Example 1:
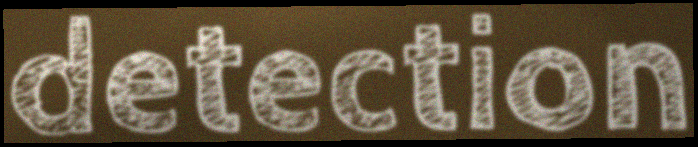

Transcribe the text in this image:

detection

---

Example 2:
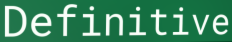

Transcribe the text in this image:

Definitive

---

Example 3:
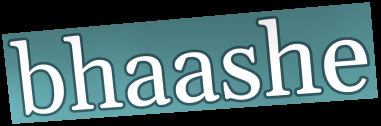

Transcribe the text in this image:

bhaashe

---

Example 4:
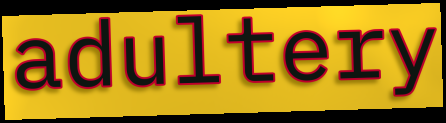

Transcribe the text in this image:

adultery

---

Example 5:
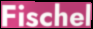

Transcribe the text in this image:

Fischel